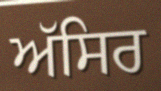
ਅੱਸਿਰ